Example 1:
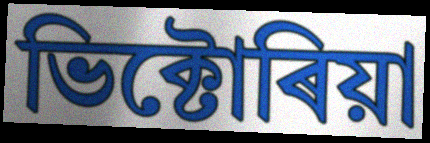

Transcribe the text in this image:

ভিক্টোৰিয়া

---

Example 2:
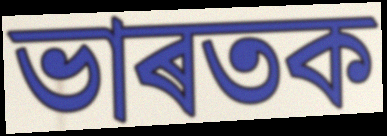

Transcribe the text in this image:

ভাৰতক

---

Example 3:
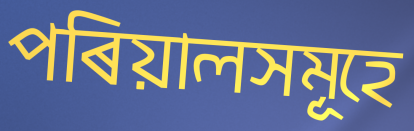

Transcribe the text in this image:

পৰিয়ালসমূহে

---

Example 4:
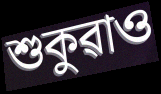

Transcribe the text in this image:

শুকুৱাও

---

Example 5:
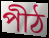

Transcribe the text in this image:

পীঠ